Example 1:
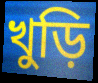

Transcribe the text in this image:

খুড়ি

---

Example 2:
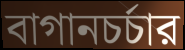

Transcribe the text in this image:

বাগানচর্চার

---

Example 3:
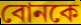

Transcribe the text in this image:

বোনকে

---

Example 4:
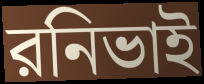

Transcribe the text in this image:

রনিভাই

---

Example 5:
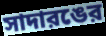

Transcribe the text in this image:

সাদারঙের